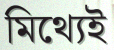
মিথ্যেই